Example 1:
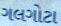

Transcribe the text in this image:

ગલગોટા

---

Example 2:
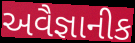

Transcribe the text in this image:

અવૈજ્ઞાનીક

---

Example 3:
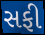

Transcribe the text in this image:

સફી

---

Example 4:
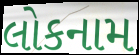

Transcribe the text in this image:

લોકનામ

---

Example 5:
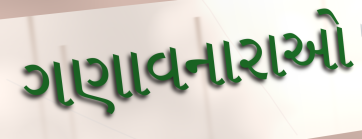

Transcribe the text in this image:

ગણાવનારાઓ